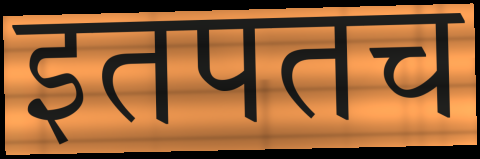
इतपतच